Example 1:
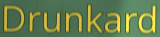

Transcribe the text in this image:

Drunkard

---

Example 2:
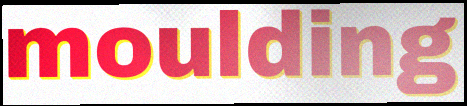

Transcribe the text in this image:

moulding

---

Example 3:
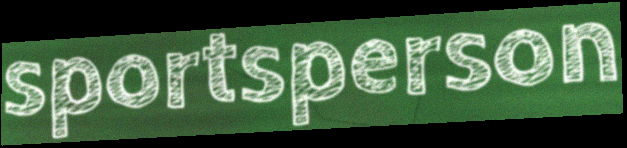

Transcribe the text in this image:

sportsperson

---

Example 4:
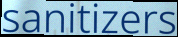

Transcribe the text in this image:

sanitizers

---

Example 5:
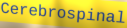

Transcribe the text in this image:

Cerebrospinal